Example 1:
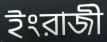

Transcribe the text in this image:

ইংরাজী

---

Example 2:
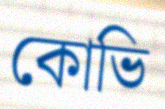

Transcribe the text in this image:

কোভি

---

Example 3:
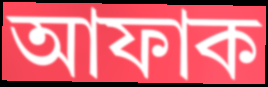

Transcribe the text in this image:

আফাক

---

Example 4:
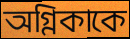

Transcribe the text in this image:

অগ্নিকাকে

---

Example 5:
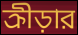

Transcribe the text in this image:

ক্রীড়ার